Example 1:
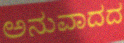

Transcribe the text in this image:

ಅನುವಾದದ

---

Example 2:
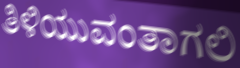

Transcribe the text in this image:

ತಿಳಿಯುವಂತಾಗಲಿ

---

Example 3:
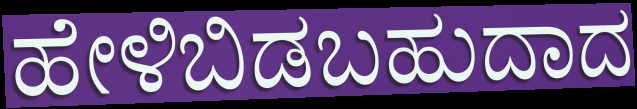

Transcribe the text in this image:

ಹೇಳಿಬಿಡಬಹುದಾದ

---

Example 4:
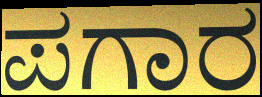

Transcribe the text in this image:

ಪಗಾರ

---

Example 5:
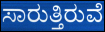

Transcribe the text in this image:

ಸಾರುತ್ತಿರುವೆ